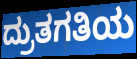
ದ್ರುತಗತಿಯ